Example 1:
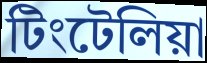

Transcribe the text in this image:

টিংটেলিয়া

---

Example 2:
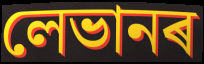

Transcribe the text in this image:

লেভানৰ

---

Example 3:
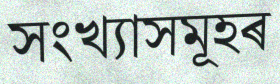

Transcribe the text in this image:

সংখ্যাসমূহৰ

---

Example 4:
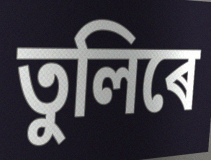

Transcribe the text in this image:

তুলিৰে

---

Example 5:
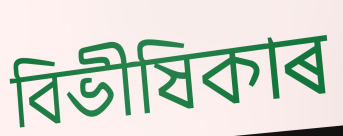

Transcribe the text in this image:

বিভীষিকাৰ